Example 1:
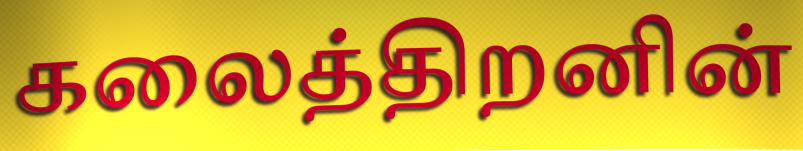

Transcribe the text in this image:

கலைத்திறனின்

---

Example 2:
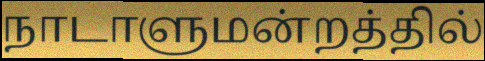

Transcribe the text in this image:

நாடாளுமன்றத்தில்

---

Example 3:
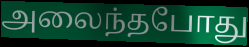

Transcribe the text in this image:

அலைந்தபோது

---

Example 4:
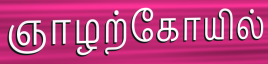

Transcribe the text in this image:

ஞாழற்கோயில்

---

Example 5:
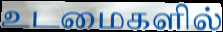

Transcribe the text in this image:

உடமைகளில்